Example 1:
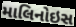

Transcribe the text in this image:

માલિનોઇસ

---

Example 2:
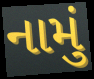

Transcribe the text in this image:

નામું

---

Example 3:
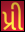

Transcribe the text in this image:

પ્રી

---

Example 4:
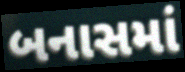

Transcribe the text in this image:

બનાસમાં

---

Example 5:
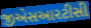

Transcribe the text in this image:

જીએસઆરટીસી